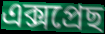
এক্সপ্ৰেছ